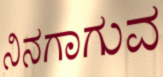
ನಿನಗಾಗುವ